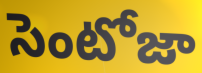
సెంటోజా